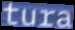
tura